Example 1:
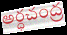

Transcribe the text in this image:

అర్ధచంద్ర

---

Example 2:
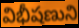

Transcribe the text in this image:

విభీషణుని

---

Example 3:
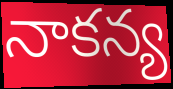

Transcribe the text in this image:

నాకన్య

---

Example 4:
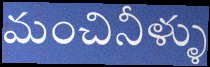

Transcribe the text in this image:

మంచినీళ్ళు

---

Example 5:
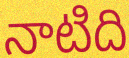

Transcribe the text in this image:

నాటిది